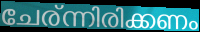
ചേര്ന്നിരിക്കണം